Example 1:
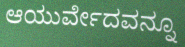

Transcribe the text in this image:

ಆಯುರ್ವೇದವನ್ನೂ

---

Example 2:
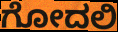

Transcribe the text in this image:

ಗೋದಲಿ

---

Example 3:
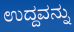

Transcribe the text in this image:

ಉದ್ದವನ್ನು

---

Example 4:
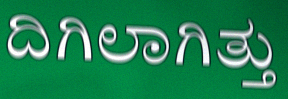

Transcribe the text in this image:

ದಿಗಿಲಾಗಿತ್ತು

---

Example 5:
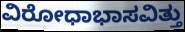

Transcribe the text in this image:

ವಿರೋಧಾಭಾಸವಿತ್ತು